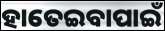
ହାତେଇବାପାଇଁ